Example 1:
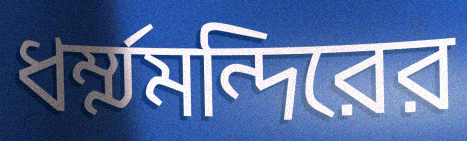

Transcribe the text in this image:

ধর্ম্মমন্দিরের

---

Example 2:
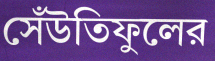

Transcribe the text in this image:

সেঁউতিফুলের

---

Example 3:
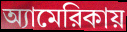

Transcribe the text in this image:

অ্যামেরিকায়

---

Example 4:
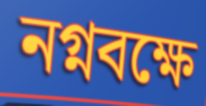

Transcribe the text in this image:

নগ্নবক্ষে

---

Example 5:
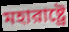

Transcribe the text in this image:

মহারাষ্ট্রে